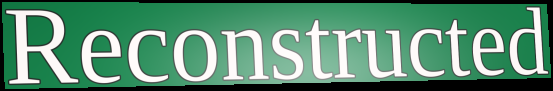
Reconstructed